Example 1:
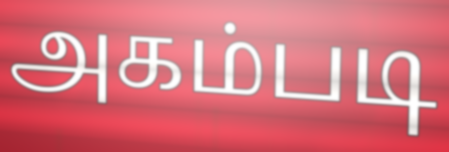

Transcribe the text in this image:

அகம்படி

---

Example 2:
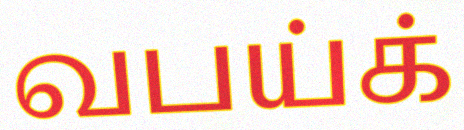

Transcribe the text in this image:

வபய்க்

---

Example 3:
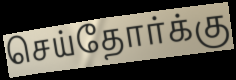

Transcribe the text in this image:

செய்தோர்க்கு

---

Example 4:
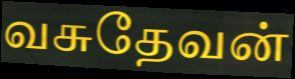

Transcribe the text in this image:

வசுதேவன்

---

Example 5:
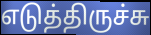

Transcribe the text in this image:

எடுத்திருச்சு